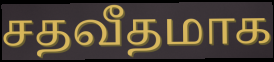
சதவீதமாக